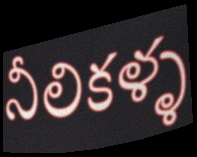
నీలికళ్ళ